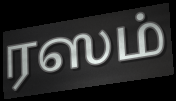
ரஸம்